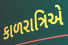
કાળરાત્રિએ